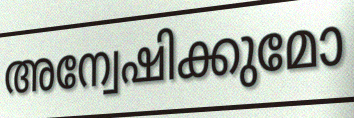
അന്വേഷിക്കുമോ